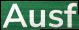
Ausf